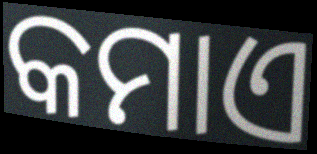
କମାଏ